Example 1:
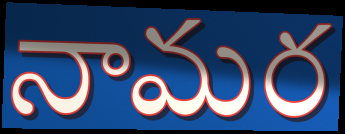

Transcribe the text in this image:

నామర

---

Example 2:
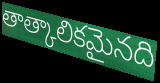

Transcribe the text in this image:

తాత్కాలికమైనది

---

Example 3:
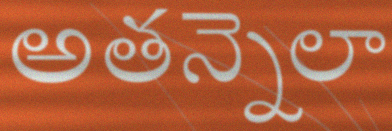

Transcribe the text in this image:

అతన్నెలా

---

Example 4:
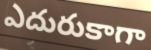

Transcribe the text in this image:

ఎదురుకాగా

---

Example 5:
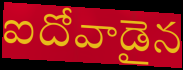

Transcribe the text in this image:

ఐదోవాడైన